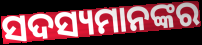
ସଦସ୍ୟମାନଙ୍କର